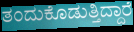
ತಂದುಕೊಡುತ್ತಿದ್ದಾರೆ